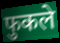
फुकले